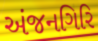
અંજનગિરિ